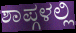
ಶಾಪ್ಗಳಲ್ಲಿ